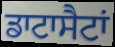
ਡਾਟਾਸੈਟਾਂ